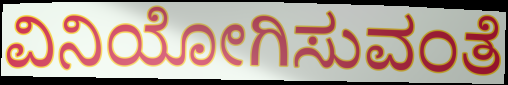
ವಿನಿಯೋಗಿಸುವಂತೆ